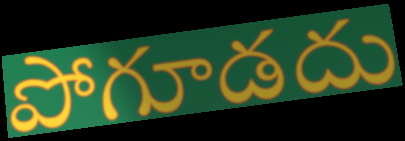
పోగూడదు